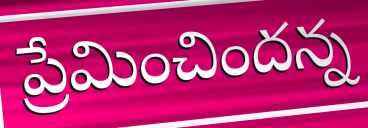
ప్రేమించిందన్న